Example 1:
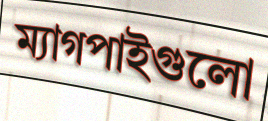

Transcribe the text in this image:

ম্যাগপাইগুলো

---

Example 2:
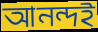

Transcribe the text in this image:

আনন্দই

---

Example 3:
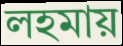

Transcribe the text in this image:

লহমায়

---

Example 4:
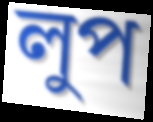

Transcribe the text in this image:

লুপ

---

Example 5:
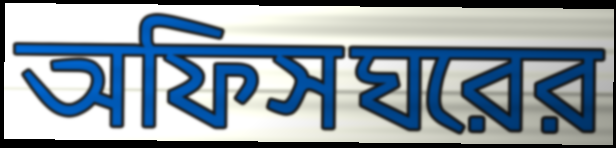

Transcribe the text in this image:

অফিসঘরের